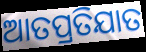
ଆତପ୍ରତିଯାତ